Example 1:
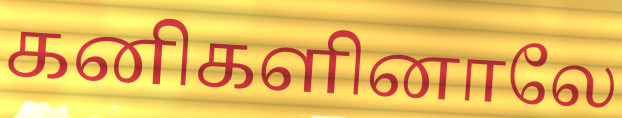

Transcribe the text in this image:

கனிகளினாலே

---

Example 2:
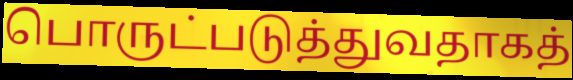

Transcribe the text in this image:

பொருட்படுத்துவதாகத்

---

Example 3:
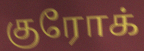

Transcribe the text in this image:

குரோக்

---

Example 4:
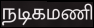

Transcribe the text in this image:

நடிகமணி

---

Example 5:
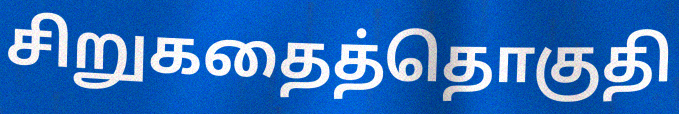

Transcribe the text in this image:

சிறுகதைத்தொகுதி